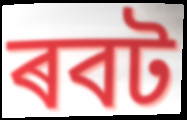
ৰবট